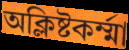
অক্লিষ্টকর্ম্মা